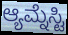
ಆ್ಯಮ್ನೆಸ್ಟಿ